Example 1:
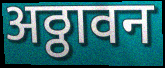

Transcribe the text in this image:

अठ्ठावन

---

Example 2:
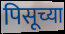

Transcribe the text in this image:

पिसूच्या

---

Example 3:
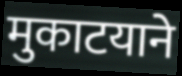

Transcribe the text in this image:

मुकाटयाने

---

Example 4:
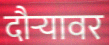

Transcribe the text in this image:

दौऱ्यावर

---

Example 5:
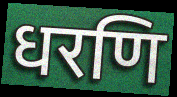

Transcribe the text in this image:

धरणि